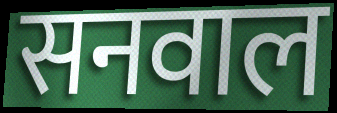
सनवाल